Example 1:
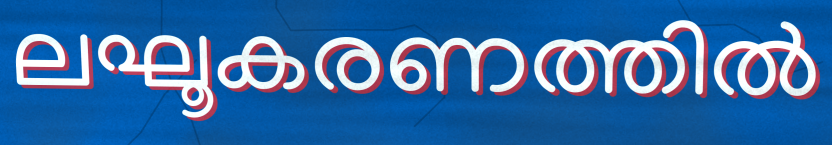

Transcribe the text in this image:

ലഘൂകരണത്തിൽ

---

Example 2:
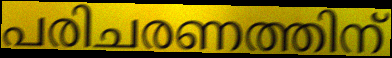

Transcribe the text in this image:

പരിചരണത്തിന്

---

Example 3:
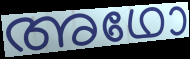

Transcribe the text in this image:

അഥോ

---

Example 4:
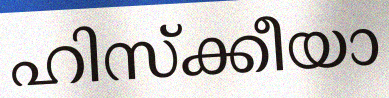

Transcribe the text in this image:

ഹിസ്ക്കീയാ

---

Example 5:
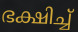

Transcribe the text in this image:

ഭക്ഷിച്ച്